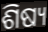
ଶିଷ୍ୟ